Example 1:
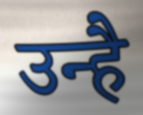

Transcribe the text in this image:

उन्है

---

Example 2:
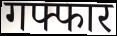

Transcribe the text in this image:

गफ्फार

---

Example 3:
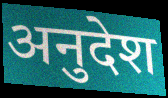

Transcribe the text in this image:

अनुदेश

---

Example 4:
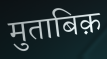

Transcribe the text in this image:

मुताबिक़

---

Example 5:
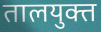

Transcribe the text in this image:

तालयुक्त